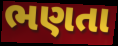
ભણતા